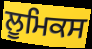
ਲੂਮਿਕਸ